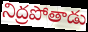
నిద్రపోతాడు